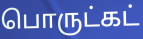
பொருட்கட்